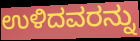
ಉಳಿದವರನ್ನು